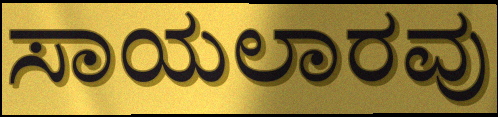
ಸಾಯಲಾರವು